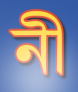
নী